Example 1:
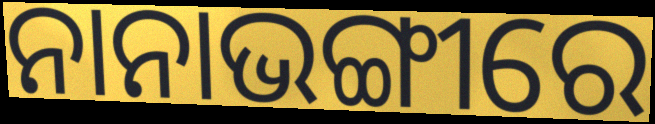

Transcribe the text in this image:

ନାନାଭଙ୍ଗୀରେ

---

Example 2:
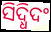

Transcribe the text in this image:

ସିଦ୍ଧିଦଂ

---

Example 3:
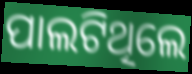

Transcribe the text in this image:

ପାଲଟିଥିଲେ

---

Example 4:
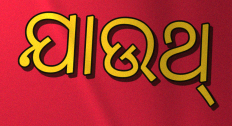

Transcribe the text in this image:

ଯାଉଥ୍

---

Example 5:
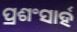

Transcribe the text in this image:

ପ୍ରଶଂସାର୍ହ